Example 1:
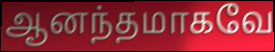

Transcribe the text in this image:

ஆனந்தமாகவே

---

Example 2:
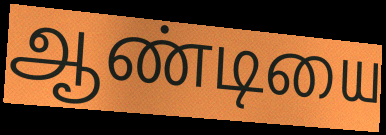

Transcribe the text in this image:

ஆண்டியை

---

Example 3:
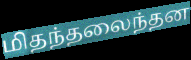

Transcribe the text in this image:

மிதந்தலைந்தன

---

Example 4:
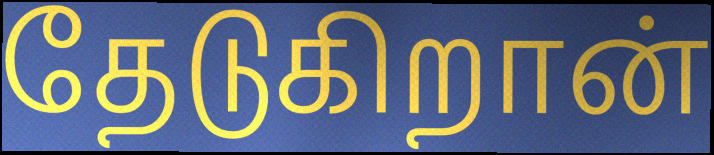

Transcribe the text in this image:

தேடுகிறான்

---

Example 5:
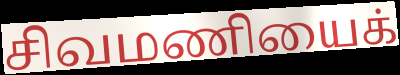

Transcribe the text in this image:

சிவமணியைக்